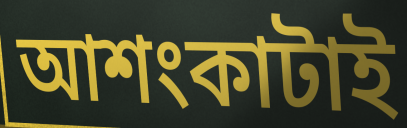
আশংকাটাই